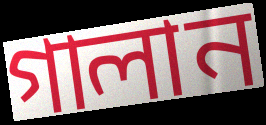
গালান